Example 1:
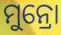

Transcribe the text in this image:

ମୁନ୍ରୋ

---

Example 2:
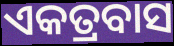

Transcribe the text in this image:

ଏକତ୍ରବାସ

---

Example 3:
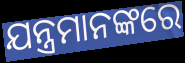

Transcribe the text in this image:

ଯନ୍ତ୍ରମାନଙ୍କରେ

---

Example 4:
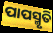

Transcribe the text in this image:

ପାପସ୍ମୃତି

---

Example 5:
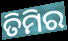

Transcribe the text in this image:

ତିମିର